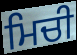
ਮਿਚੀ